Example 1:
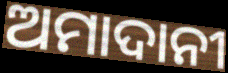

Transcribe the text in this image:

ଅମାଦାନୀ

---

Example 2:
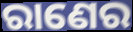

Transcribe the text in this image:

ରାଣେର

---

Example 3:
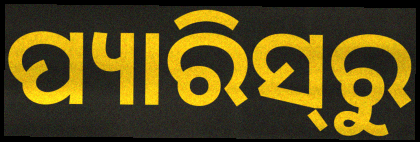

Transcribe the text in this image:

ପ୍ୟାରିସ୍‌ରୁ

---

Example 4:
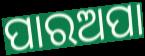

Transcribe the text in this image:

ପାରଅପା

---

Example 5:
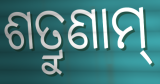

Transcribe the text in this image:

ଶତ୍ରୁଣାମ୍